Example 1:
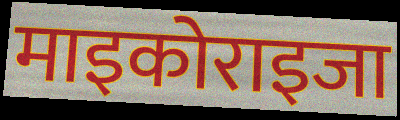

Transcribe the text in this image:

माइकोराइजा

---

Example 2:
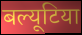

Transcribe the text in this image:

बल्यूटिया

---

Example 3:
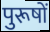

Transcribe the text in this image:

पुरूषों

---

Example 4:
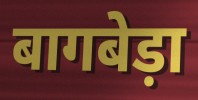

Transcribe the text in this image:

बागबेड़ा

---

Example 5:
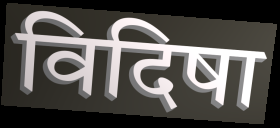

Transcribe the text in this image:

विदिषा